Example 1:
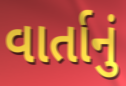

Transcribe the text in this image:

વાર્તાનું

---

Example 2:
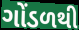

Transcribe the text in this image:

ગોંડળથી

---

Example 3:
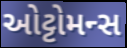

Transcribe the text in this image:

ઓટ્ટોમન્સ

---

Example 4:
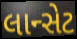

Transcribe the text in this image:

લાન્સેટ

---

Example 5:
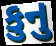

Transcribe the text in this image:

કુનુ